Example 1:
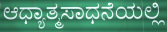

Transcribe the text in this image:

ಆಧ್ಯಾತ್ಮಸಾಧನೆಯಲ್ಲಿ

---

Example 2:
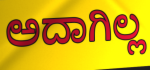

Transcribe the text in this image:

ಅದಾಗಿಲ್ಲ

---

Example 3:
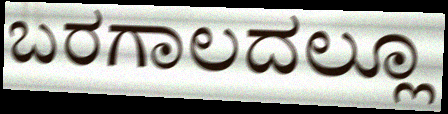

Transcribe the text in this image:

ಬರಗಾಲದಲ್ಲೂ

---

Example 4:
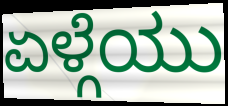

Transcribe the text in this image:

ಏಳ್ಗೆಯು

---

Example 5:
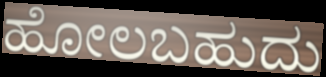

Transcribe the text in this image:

ಹೋಲಬಹುದು